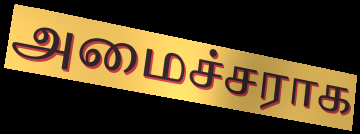
அமைச்சராக